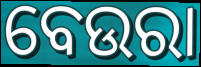
ବେଉରା